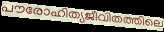
പൗരോഹിത്യജീവിതത്തിലെ